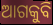
ଆଗକୁବି